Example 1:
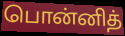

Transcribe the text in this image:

பொன்னித்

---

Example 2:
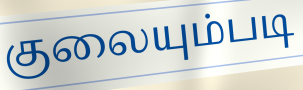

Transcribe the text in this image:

குலையும்படி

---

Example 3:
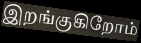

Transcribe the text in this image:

இறங்குகிறோம்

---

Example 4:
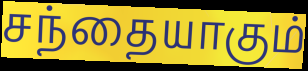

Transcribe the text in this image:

சந்தையாகும்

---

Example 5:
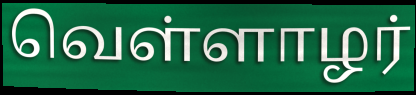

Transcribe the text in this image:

வெள்ளாழர்